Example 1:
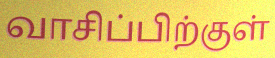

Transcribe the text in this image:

வாசிப்பிற்குள்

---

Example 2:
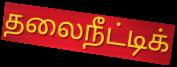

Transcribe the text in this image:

தலைநீட்டிக்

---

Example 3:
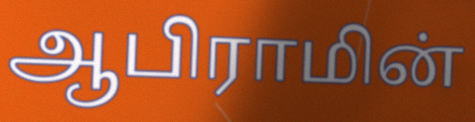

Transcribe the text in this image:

ஆபிராமின்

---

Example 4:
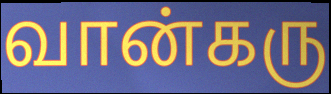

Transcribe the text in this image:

வான்கரு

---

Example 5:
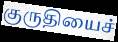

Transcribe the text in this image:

குருதியைச்